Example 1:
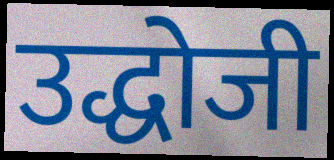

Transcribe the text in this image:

उद्धोजी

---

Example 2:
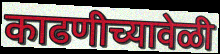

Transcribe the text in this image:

काढणीच्यावेळी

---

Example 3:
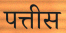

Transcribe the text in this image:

पत्तीस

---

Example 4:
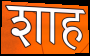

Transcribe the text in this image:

शाह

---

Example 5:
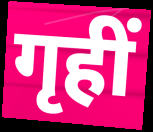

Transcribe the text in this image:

गृहीं